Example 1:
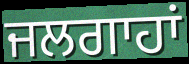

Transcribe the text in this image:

ਜਲਗਾਹਾਂ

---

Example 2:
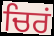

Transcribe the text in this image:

ਚਿਰਂ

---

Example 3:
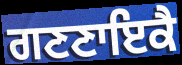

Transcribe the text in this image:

ਗਣਣਾਇਕੈ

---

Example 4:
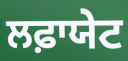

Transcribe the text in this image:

ਲਫ਼ਾਯੇਟ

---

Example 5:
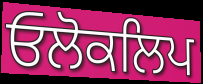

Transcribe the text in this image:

ਓਲੋਕਲਿਪ